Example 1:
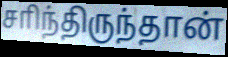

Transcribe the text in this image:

சரிந்திருந்தான்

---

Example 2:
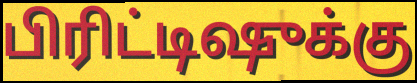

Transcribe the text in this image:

பிரிட்டிஷுக்கு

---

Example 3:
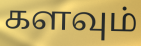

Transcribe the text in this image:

களவும்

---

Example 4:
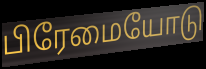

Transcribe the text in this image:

பிரேமையோடு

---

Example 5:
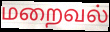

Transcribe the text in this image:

மறைவல்